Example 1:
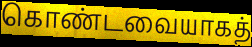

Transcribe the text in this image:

கொண்டவையாகத்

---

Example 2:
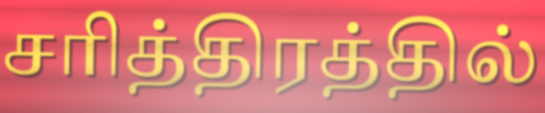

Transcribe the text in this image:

சரித்திரத்தில்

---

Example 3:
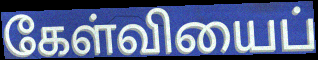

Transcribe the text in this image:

கேள்வியைப்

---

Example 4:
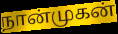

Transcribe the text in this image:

நான்முகன்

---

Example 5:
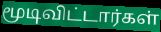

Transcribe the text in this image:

மூடிவிட்டார்கள்